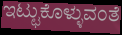
ಇಟ್ಟುಕೊಳ್ಳುವಂತೆ